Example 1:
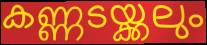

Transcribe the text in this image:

കണ്ണടയ്ക്കലും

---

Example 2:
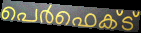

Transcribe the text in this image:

പെർഫെക്ട്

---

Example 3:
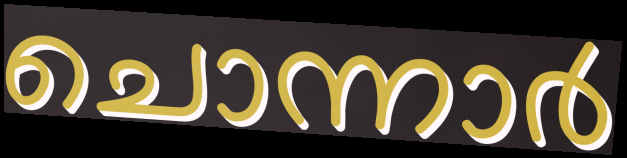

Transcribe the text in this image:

ചൊന്നാർ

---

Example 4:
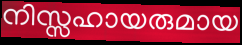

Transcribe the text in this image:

നിസ്സഹായരുമായ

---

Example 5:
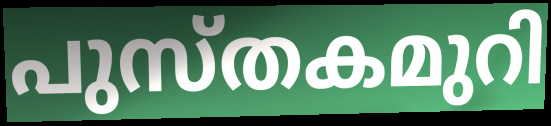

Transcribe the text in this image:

പുസ്തകമുറി